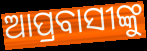
ଆପ୍ରବାସୀଙ୍କୁ